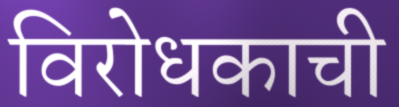
विरोधकाची